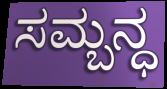
ಸಮ್ಬನ್ಧ